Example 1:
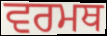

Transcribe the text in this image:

ਵਰਮਥ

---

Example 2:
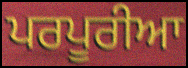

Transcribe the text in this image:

ਪਰਪੂਰੀਆ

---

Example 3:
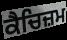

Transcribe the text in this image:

ਕੈਚਿਜ਼ਮ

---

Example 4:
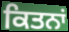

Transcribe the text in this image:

ਕਿਤਨਾਂ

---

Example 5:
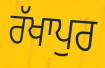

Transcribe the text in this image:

ਰੱਖਾਪੁਰ